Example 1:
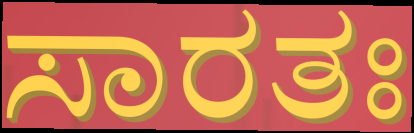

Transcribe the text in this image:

ಸಾರತಃ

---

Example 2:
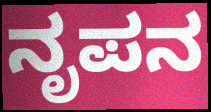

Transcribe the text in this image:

ನೃಪನ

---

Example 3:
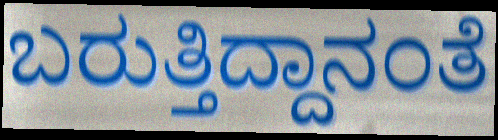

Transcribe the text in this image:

ಬರುತ್ತಿದ್ದಾನಂತೆ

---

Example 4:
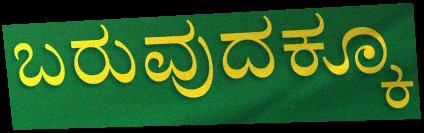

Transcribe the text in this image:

ಬರುವುದಕ್ಕೂ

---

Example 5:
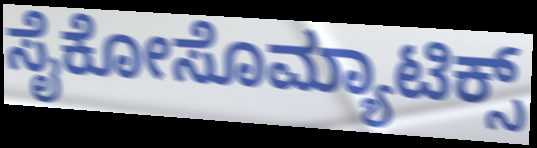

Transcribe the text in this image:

ಸೈಕೋಸೊಮ್ಯಾಟಿಕ್ಸ್